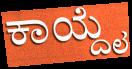
ಕಾಯ್ದೈ